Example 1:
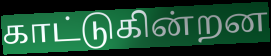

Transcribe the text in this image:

காட்டுகின்றன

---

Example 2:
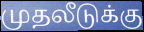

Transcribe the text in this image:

முதலீடுக்கு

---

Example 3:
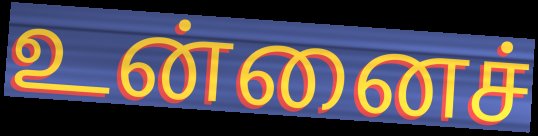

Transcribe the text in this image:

உன்னைச்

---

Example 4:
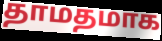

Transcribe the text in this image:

தாமதமாக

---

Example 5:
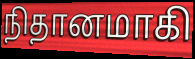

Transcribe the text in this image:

நிதானமாகி